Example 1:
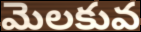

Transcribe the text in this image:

మెలకువ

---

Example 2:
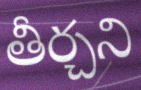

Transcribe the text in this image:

తీర్చని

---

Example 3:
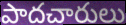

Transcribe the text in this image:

పాదచారులు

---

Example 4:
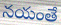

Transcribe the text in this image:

నయంతే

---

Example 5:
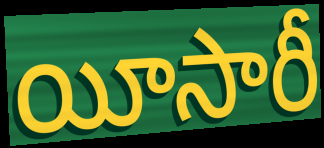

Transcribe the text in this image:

యీసారీ